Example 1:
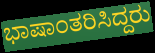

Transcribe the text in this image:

ಭಾಷಾಂತರಿಸಿದ್ದರು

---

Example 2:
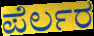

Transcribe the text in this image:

ಪೆರ್ಲರ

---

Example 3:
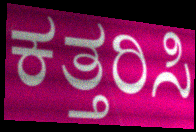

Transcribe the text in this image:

ಕತ್ತರಿಸಿ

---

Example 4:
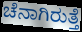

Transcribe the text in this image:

ಚೆನಾಗಿರುತ್ತೆ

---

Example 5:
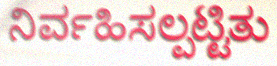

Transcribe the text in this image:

ನಿರ್ವಹಿಸಲ್ಪಟ್ಟಿತು